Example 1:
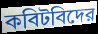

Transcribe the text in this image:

কবিটবিদের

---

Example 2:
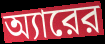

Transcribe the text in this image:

অ্যারের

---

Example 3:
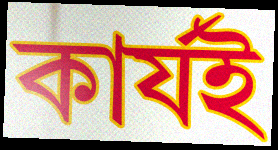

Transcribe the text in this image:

কার্যই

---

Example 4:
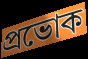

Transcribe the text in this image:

প্রভোক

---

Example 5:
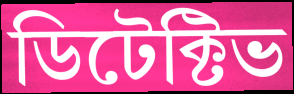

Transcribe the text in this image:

ডিটেক্টিভ